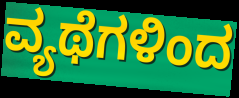
ವ್ಯಥೆಗಳಿಂದ